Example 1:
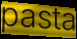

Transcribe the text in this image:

pasta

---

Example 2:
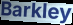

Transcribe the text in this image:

Barkley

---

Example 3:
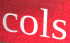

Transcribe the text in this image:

cols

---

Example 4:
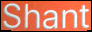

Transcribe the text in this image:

Shant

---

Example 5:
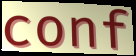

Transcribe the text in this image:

conf